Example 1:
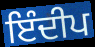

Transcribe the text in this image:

ਇੰਦੀਪ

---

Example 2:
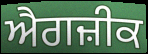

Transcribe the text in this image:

ਐਗਜ਼ੀਕ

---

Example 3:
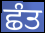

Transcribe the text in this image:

ਛੰਤ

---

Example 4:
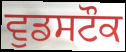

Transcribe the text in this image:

ਵੁਡਸਟੌਕ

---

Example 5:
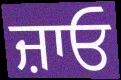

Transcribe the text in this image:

ਜ਼ਾਓ